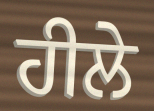
ਹੀਲੇ